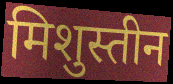
मिशुस्तीन